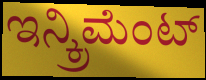
ಇನ್ಕ್ರಿಮೆಂಟ್